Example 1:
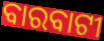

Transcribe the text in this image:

ବାରବାଟୀ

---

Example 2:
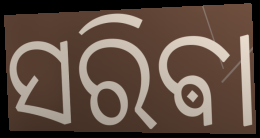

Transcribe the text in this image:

ସରିଵା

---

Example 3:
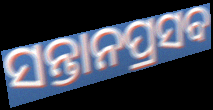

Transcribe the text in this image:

ସନ୍ତାନପ୍ରସବ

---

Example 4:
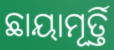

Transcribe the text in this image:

ଛାୟାମୂର୍ତ୍ତି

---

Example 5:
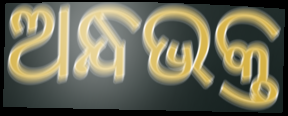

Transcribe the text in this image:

ଅନ୍ଧଭକ୍ତ